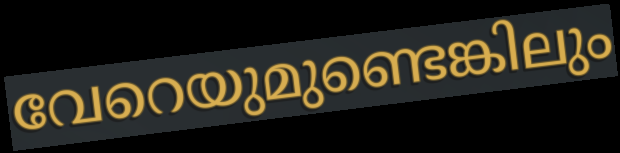
വേറെയുമുണ്ടെങ്കിലും